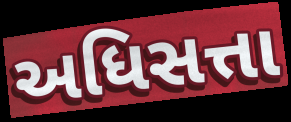
અધિસત્તા